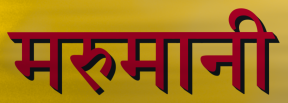
मरुमानी